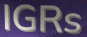
IGRs